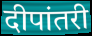
दीपांतरी